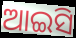
ଆଇସି